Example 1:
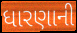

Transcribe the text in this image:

ધારણાની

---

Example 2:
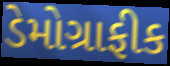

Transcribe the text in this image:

ડેમોગ્રાફીક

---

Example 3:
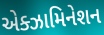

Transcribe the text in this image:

એક્ઝામિનેશન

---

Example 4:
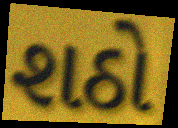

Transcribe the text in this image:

શઠો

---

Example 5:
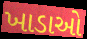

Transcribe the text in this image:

ખાડાઓ